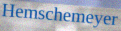
Hemschemeyer